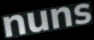
nuns